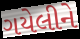
ગયેલીને